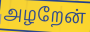
அழறேன்